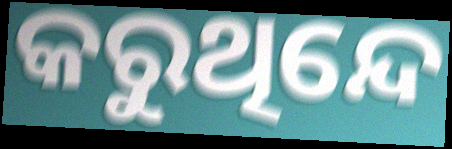
କରୁଥିନ୍ଦେ